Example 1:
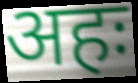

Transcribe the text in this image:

अहः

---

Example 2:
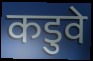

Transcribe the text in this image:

कडुवे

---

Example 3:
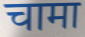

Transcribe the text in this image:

चामा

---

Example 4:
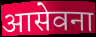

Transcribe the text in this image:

आसेवना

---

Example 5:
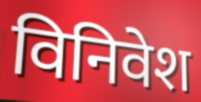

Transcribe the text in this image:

विनिवेश